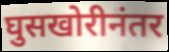
घुसखोरीनंतर